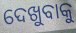
ଦେଖୁବାକୁ